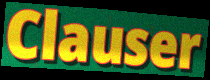
Clauser